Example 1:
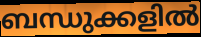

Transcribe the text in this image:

ബന്ധുക്കളിൽ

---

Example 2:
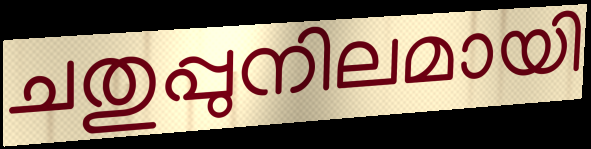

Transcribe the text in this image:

ചതുപ്പുനിലമായി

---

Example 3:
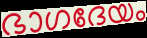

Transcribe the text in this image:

ഭാഗദേയം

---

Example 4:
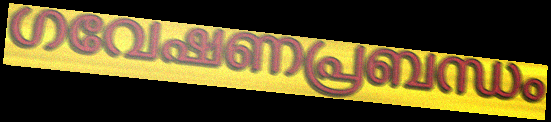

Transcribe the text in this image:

ഗവേഷണപ്രബന്ധം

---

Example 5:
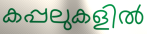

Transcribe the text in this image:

കപ്പലുകളിൽ